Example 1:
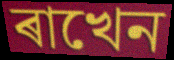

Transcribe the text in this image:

ৰাখেন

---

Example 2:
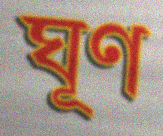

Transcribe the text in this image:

ঘূণ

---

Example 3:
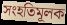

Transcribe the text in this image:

সংহতিমূলক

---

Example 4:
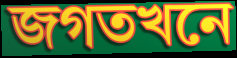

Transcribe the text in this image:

জগতখনে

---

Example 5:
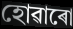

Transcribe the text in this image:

হোৱাৰো